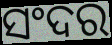
ସଂଦର